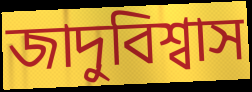
জাদুবিশ্বাস